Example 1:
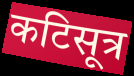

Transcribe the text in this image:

कटिसूत्र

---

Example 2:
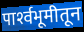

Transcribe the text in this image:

पार्श्वभूमीतून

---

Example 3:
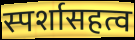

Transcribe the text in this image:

स्पर्शासहत्व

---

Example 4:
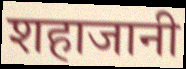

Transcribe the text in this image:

शहाजानी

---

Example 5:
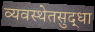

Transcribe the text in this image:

व्यवस्थेतसुद्धा